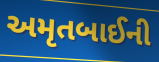
અમૃતબાઈની